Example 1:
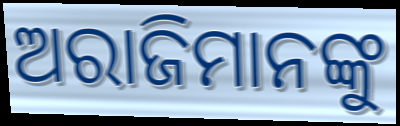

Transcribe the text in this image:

ଅରାଜିମାନଙ୍କୁ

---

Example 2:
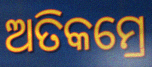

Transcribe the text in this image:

ଅତିକମ୍ରେ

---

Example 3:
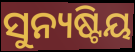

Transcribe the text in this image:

ସୁନ୍ୟଷ୍ଟିୟ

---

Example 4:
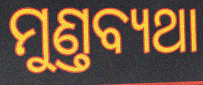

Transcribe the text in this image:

ମୁଣ୍ତବ୍ୟଥା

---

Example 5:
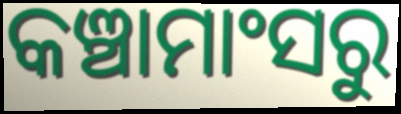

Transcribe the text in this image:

କଞ୍ଚାମାଂସରୁ